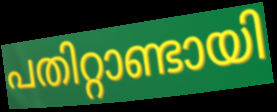
പതിറ്റാണ്ടായി